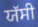
ਯੱਸੀ